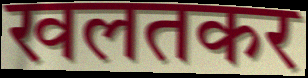
खलतकर